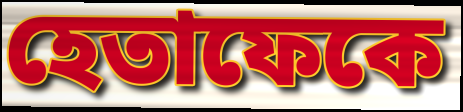
হেতাফেকে